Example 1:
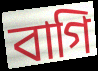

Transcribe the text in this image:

বাগি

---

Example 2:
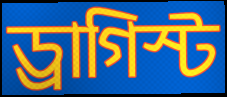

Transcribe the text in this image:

ড্রাগিস্ট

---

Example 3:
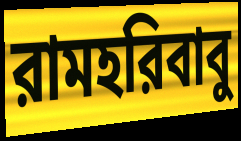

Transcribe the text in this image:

রামহরিবাবু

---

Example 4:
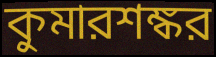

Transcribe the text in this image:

কুমারশঙ্কর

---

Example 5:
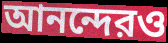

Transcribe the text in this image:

আনন্দেরও